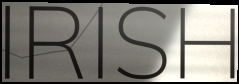
IRISH